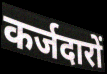
कर्जदारों